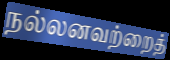
நல்லனவற்றைத்